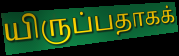
யிருப்பதாகக்